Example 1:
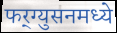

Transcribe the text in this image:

फर्ग्युसनमध्ये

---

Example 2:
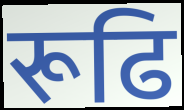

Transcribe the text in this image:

रूढि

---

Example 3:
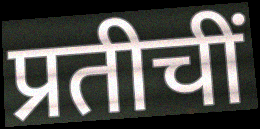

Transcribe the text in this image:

प्रतीचीं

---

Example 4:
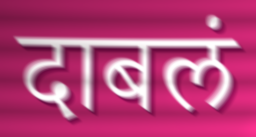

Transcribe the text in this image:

दाबलं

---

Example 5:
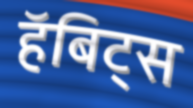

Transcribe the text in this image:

हॅबिट्स